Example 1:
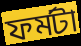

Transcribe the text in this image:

ফর্মটা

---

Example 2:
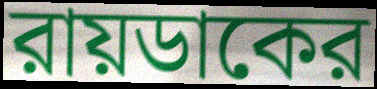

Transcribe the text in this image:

রায়ডাকের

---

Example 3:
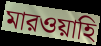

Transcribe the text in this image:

মারওয়াহি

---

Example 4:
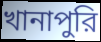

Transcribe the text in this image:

খানাপুরি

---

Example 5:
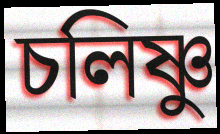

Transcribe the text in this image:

চলিষ্ণু